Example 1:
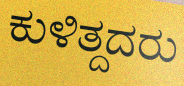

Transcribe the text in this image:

ಕುಳಿತ್ದದರು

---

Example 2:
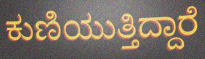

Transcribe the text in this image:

ಕುಣಿಯುತ್ತಿದ್ದಾರೆ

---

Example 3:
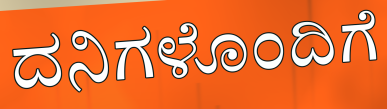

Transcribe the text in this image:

ದನಿಗಳೊಂದಿಗೆ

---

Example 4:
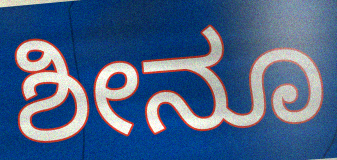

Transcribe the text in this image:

ಶೀನೂ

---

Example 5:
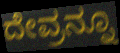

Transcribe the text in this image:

ದೇವ್ರನ್ನೂ